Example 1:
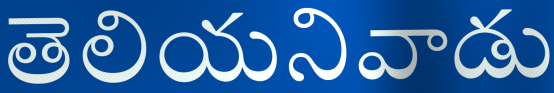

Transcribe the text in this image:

తెలియనివాడు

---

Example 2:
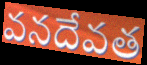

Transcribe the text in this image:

వనదేవత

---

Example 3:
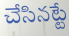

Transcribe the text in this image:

చేసినట్టే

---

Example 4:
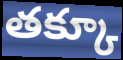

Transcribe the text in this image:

తక్కూ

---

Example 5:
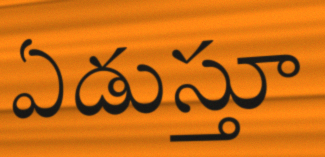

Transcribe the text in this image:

ఏడుస్తూ